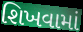
શિખવામાં